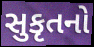
સુકૃતનો